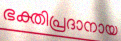
ഭക്തിപ്രദാനായ